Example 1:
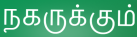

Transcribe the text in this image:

நகருக்கும்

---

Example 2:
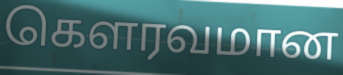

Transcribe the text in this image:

கெளரவமான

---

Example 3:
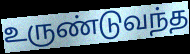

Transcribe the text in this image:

உருண்டுவந்த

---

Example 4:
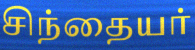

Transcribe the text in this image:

சிந்தையர்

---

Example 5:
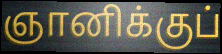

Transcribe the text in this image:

ஞானிக்குப்